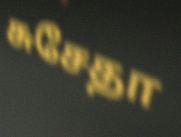
சுசேதா